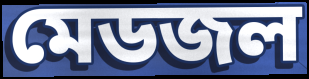
মেডজল